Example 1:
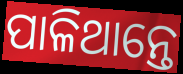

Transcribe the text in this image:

ପାଳିଥାନ୍ତେ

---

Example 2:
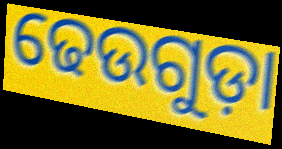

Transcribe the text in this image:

ଢେଉଗୁଡ଼ା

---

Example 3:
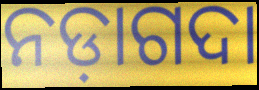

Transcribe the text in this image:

ନଡ଼ାଗଦା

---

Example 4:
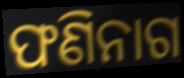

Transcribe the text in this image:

ଫଣିନାଗ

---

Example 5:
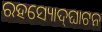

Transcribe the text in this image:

ରହସ୍ୟୋଦ୍‍ଘାଟନ